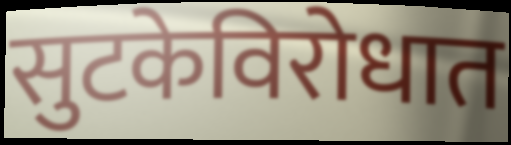
सुटकेविरोधात